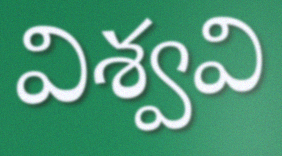
విశ్వవి